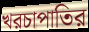
খরচাপাতির